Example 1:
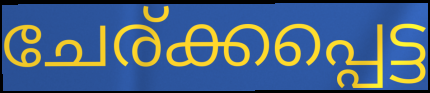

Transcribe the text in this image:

ചേര്ക്കപ്പെട്ട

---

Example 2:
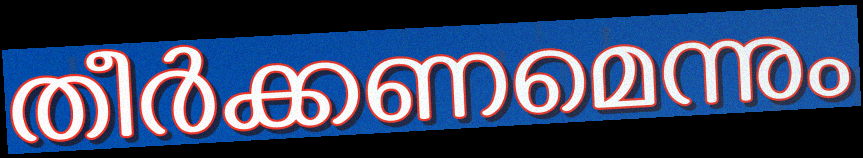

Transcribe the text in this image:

തീർക്കണമെന്നും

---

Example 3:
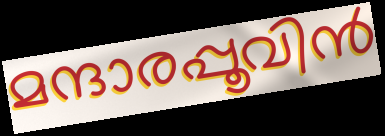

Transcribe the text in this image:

മന്ദാരപ്പൂവിൻ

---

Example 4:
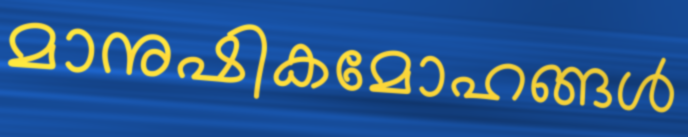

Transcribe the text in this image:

മാനുഷികമോഹങ്ങൾ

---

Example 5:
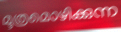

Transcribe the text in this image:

മൂത്രമൊഴിക്കുന്ന